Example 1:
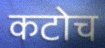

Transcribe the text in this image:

कटोच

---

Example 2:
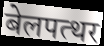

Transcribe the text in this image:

बेलपत्थर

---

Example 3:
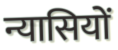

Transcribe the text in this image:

न्यासियों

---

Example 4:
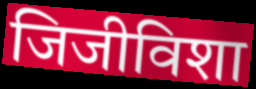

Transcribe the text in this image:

जिजीविशा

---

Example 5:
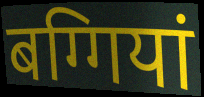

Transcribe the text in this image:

बग्गियां